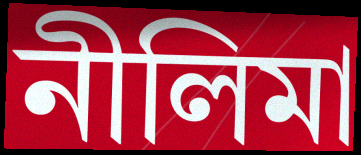
নীলিমা